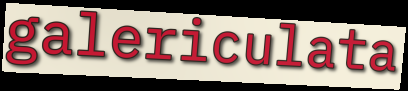
galericulata